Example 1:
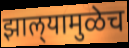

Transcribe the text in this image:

झाल्यामुळेच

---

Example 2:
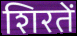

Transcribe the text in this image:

शिरतें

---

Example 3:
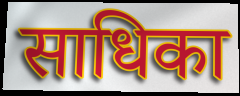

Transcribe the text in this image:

साधिका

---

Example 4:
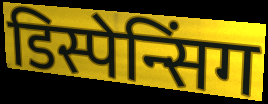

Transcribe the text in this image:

डिस्पेन्सिंग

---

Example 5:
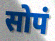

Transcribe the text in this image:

सोपं